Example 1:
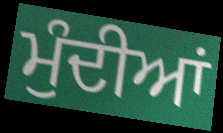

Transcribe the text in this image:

ਮੁੰਦੀਆਂ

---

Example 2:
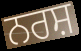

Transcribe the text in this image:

ਨਰਸ਼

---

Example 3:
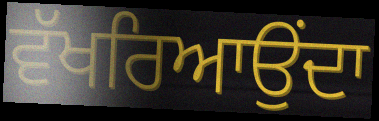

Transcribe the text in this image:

ਵੱਖਰਿਆਉਂਦਾ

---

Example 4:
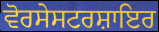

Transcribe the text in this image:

ਵੋਰਸੇਸਟਰਸ਼ਾਇਰ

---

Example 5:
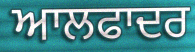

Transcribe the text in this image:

ਆਲਫਾਦਰ